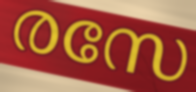
രസേ